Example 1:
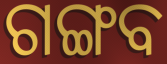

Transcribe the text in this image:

ଗଙ୍ଗବ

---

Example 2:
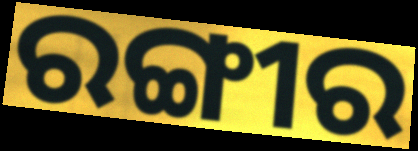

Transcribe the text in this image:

ରଙ୍ଗୀର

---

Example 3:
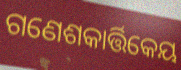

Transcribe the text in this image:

ଗଣେଶକାର୍ତ୍ତିକେୟ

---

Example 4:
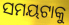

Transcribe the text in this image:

ସମୟଟାକୁ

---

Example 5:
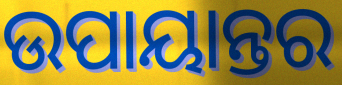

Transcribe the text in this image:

ଉପାୟାନ୍ତର